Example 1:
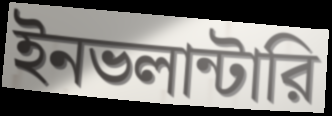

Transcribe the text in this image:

ইনভলান্টারি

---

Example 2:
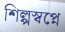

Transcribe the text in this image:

শিল্পস্বপ্নে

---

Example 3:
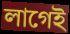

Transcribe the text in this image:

লাগেই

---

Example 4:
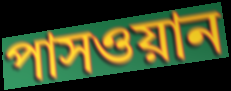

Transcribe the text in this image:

পাসওয়ান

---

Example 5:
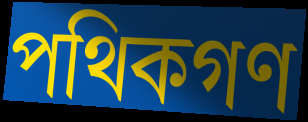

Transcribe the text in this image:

পথিকগণ